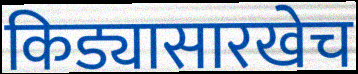
किड्यासारखेच